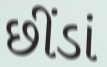
છીંડાં